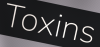
Toxins